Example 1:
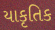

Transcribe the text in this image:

યાકૃતિક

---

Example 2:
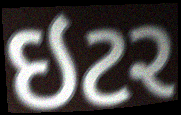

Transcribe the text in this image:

ઇટર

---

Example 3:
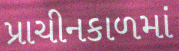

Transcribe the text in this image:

પ્રાચીનકાળમાં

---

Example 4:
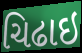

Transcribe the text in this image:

ચિઢાઇ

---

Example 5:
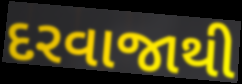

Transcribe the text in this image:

દરવાજાથી